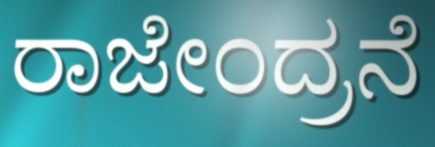
ರಾಜೇಂದ್ರನೆ